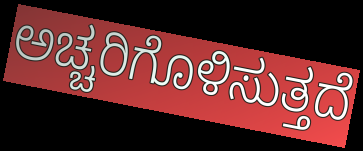
ಅಚ್ಚರಿಗೊಳಿಸುತ್ತದೆ